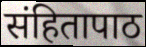
संहितापाठ